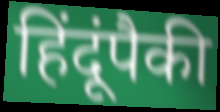
हिंदूंपैकी